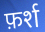
फ़र्श